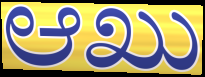
ಆಖು